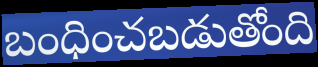
బంధించబడుతోంది